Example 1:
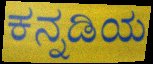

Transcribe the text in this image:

ಕನ್ನಡಿಯ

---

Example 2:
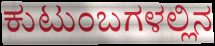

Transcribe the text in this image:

ಕುಟುಂಬಗಳಲ್ಲಿನ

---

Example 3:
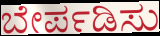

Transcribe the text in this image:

ಬೇರ್ಪಡಿಸು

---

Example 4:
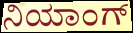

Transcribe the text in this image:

ನಿಯಾಂಗ್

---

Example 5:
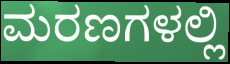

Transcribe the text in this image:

ಮರಣಗಳಲ್ಲಿ